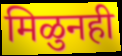
मिळुनही